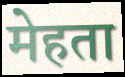
मेहता